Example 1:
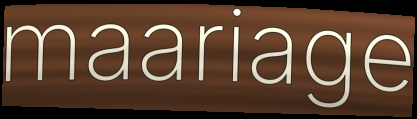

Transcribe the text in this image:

maariage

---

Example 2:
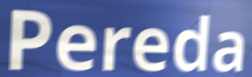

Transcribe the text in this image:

Pereda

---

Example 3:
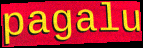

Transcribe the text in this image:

pagalu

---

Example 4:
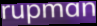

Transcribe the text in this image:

rupman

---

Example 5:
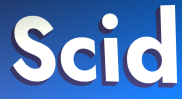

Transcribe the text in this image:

Scid